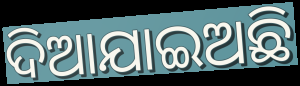
ଦିଆଯାଇଅଛି